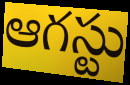
ఆగస్టు